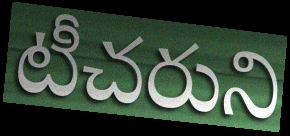
టీచరుని